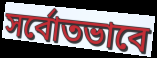
সর্বোতভাবে